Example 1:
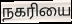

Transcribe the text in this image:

நகரியை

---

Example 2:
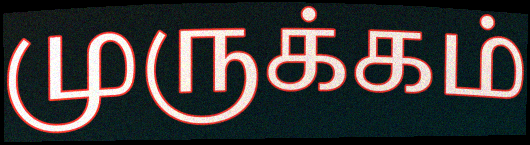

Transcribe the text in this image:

முருக்கம்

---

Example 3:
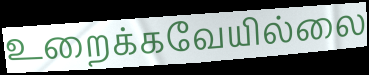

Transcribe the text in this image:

உறைக்கவேயில்லை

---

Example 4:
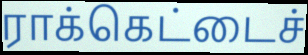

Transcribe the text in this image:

ராக்கெட்டைச்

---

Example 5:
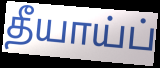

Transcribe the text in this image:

தீயாய்ப்